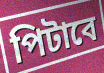
পিটাবে